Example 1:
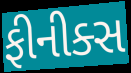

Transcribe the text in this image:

ફીનીક્સ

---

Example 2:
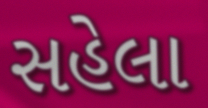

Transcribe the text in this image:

સહેલા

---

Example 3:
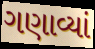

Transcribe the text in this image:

ગણાવ્યાં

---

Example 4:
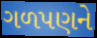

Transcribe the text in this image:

ગળપણને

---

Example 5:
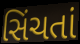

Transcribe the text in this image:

સિંચતાં